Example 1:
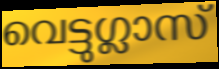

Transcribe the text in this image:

വെട്ടുഗ്ലാസ്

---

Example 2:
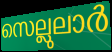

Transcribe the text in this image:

സെല്ലുലാർ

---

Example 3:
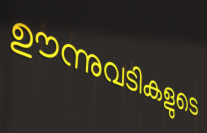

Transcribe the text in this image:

ഊന്നുവടികളുടെ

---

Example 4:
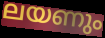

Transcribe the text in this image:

ലയണും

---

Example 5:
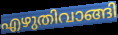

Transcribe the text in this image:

എഴുതിവാങ്ങി